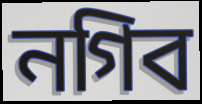
নগিব